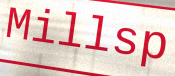
Millsp